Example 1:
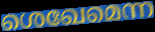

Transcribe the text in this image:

ശെഖേമെന്ന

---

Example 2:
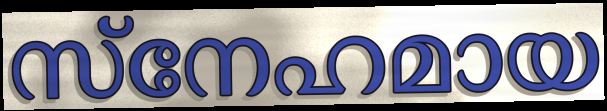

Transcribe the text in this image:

സ്നേഹമായ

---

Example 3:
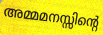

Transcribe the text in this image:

അമ്മമനസ്സിന്റെ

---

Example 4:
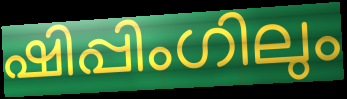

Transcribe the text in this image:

ഷിപ്പിംഗിലും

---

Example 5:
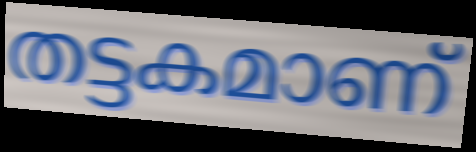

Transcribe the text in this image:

തട്ടകമാണ്